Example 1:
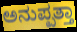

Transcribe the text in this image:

ಅನುಪ್ಪತ್ತಾ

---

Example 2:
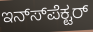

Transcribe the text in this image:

ಇನ್ಸ್‍ಪೆಕ್ಟರ್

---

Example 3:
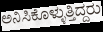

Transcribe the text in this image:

ಅನಿಸಿಕೊಳ್ಳುತ್ತಿದ್ದರು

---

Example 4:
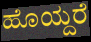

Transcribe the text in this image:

ಹೊಯ್ದರೆ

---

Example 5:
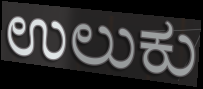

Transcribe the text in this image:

ಉಲುಕು